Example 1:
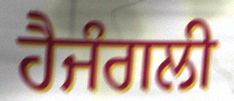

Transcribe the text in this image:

ਹੈਜੰਗਲੀ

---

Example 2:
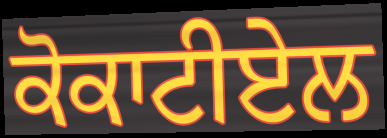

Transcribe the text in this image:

ਕੋਕਾਟੀਏਲ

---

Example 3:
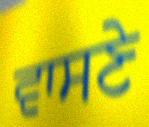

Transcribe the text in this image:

ਵਾਸਣੇ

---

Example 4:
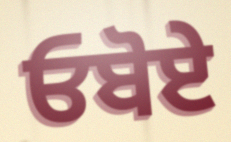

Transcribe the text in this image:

ਓਬੋਏ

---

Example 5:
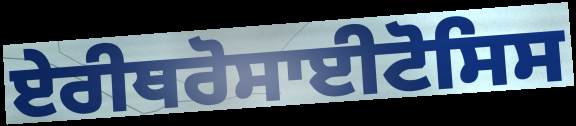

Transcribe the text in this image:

ਏਰੀਥਰੋਸਾਈਟੋਸਿਸ